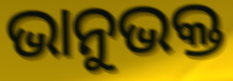
ଭାନୁଭକ୍ତ